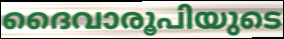
ദൈവാരൂപിയുടെ